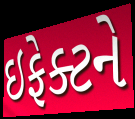
ઇફેક્ટને